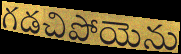
గడచిపోయెను